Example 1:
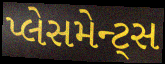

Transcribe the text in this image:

પ્લેસમેન્ટ્સ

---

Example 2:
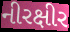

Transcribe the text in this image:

નીરક્ષીર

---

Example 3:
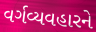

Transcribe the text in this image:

વર્ગવ્યવહારને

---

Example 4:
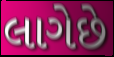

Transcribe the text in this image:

લાગેછે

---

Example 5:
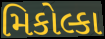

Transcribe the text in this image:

મિકોલ્કા